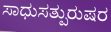
ಸಾಧುಸತ್ಪುರುಷರ